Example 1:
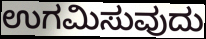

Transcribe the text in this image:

ಉಗಮಿಸುವುದು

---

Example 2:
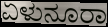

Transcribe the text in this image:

ಏಳುನೂರಾ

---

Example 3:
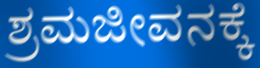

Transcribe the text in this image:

ಶ್ರಮಜೀವನಕ್ಕೆ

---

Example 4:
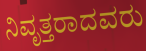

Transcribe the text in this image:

ನಿವೃತ್ತರಾದವರು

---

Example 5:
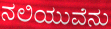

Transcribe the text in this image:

ನಲಿಯುವೆನು